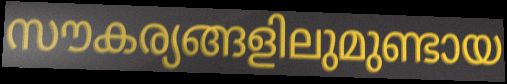
സൗകര്യങ്ങളിലുമുണ്ടായ